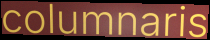
columnaris